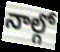
నాల్గో